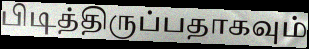
பிடித்திருப்பதாகவும்